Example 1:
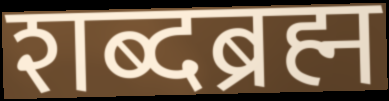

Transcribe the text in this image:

शब्दब्रह्म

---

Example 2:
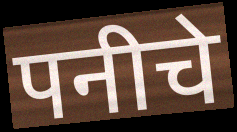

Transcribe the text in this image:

पनीचे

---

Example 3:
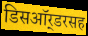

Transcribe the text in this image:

डिसऑर्डरसह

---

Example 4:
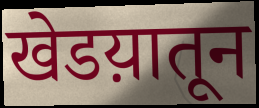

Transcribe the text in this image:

खेडय़ातून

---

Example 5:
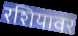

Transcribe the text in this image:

रशियावर